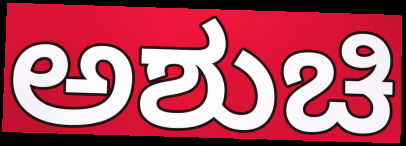
ಅಶುಚಿ